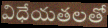
విధేయతలతో